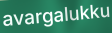
avargalukku